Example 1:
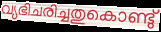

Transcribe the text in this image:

വ്യഭിചരിച്ചതുകൊണ്ടു്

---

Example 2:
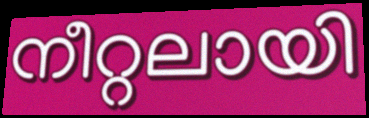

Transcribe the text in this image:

നീറ്റലായി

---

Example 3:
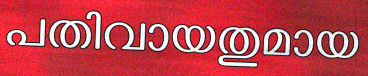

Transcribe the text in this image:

പതിവായതുമായ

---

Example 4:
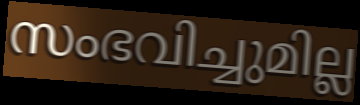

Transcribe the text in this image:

സംഭവിച്ചുമില്ല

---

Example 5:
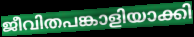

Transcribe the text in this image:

ജീവിതപങ്കാളിയാക്കി